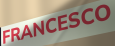
FRANCESCO